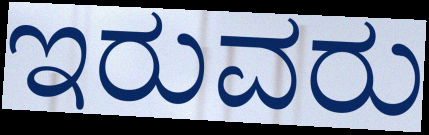
ಇರುವರು